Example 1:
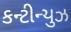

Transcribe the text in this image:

કન્ટીન્યુઝ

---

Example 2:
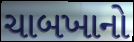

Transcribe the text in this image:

ચાબખાનો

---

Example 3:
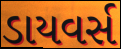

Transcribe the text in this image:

ડાયવર્સ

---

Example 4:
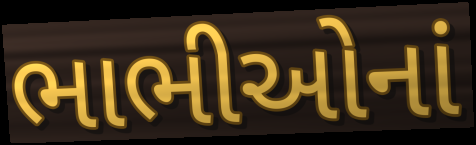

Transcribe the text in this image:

ભાભીઓનાં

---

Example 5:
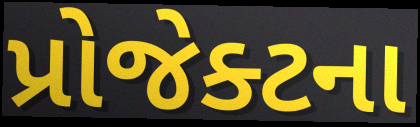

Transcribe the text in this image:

પ્રોજેક્ટના